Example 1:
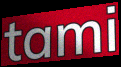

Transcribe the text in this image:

tami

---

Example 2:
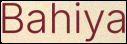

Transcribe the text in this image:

Bahiya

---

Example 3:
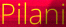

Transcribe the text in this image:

Pilani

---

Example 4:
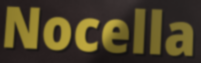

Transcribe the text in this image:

Nocella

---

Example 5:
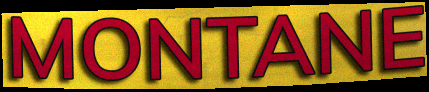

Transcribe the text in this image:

MONTANE